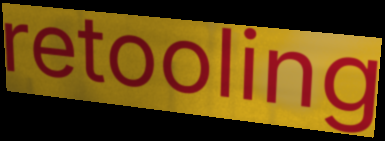
retooling